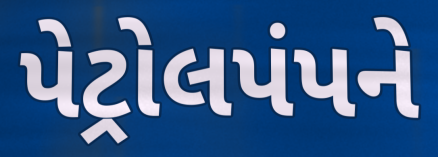
પેટ્રોલપંપને